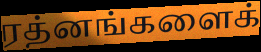
ரத்னங்களைக்